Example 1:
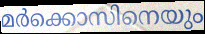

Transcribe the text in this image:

മർക്കൊസിനെയും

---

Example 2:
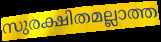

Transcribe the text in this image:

സുരക്ഷിതമല്ലാത്ത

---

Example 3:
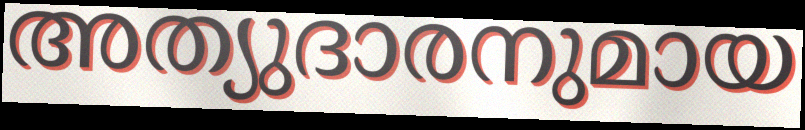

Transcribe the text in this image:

അത്യുദാരനുമായ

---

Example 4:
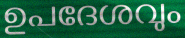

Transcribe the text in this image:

ഉപദേശവും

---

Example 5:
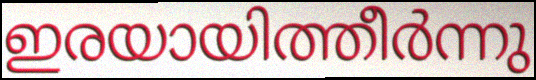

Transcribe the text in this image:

ഇരയായിത്തീർന്നു